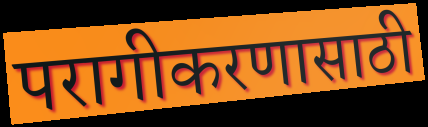
परागीकरणासाठी